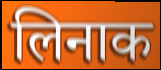
लिनाक